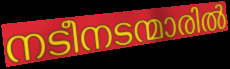
നടീനടന്മാരിൽ